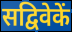
सद्विवेकें